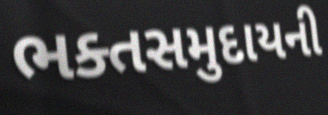
ભક્તસમુદાયની